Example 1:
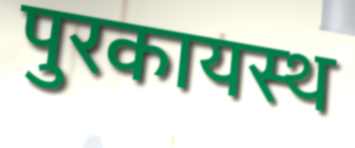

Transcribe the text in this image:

पुरकायस्थ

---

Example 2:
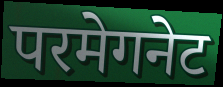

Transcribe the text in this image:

परमेगनेट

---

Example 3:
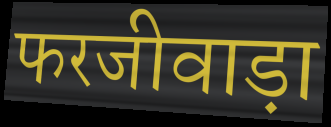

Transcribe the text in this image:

फरजीवाड़ा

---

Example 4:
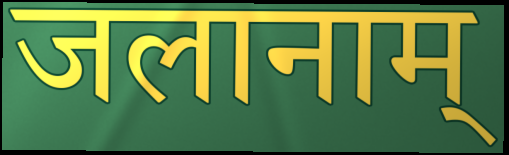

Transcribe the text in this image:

जलानाम्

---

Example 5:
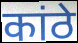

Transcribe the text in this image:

कांठे